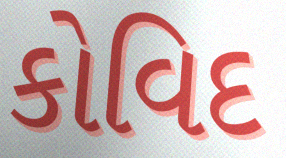
કોવિદ